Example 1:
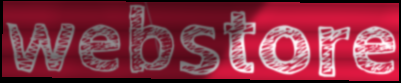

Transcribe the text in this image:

webstore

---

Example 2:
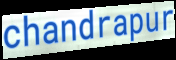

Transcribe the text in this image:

chandrapur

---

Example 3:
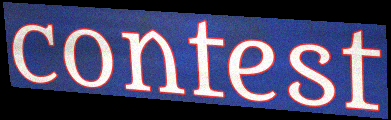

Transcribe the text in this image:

contest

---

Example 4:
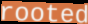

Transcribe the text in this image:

rooted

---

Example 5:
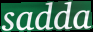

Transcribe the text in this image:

sadda